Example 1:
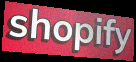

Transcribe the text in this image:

shopify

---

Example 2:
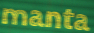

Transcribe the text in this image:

manta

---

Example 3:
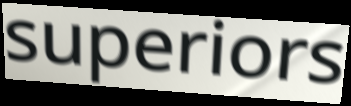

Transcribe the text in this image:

superiors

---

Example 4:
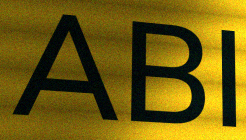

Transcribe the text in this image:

ABI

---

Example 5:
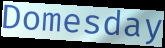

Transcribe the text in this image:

Domesday